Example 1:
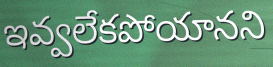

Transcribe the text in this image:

ఇవ్వలేకపోయానని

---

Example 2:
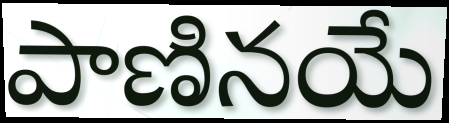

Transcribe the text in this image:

పాణినయే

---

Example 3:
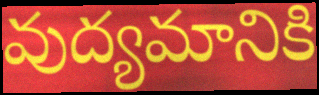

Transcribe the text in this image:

వుద్యమానికి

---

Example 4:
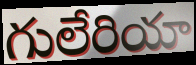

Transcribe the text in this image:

గులేరియా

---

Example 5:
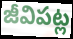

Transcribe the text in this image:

జీవిపట్ల